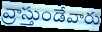
వ్రాస్తుండేవారు